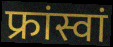
फ्रांस्वां